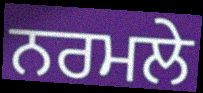
ਨਰਮਲੇ